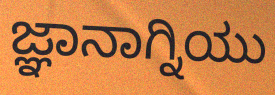
ಜ್ಞಾನಾಗ್ನಿಯು